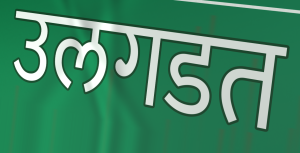
उलगडत